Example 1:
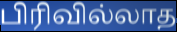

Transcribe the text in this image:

பிரிவில்லாத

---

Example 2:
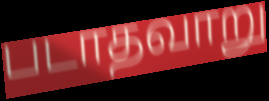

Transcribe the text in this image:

படாதவாறு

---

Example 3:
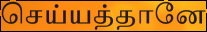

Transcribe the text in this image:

செய்யத்தானே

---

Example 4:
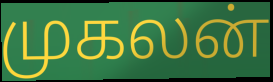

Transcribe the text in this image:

முகலன்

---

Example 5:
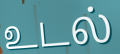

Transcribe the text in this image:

உடல்